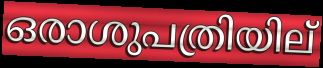
ഒരാശുപത്രിയില്